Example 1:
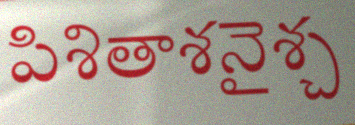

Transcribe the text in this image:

పిశితాశనైశ్చ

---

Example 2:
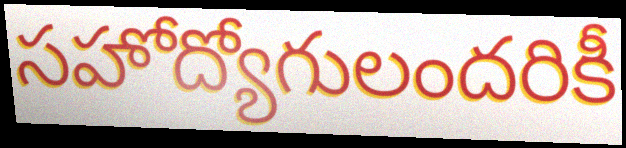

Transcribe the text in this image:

సహోద్యోగులందరికీ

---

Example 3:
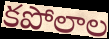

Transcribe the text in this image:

కపోలాల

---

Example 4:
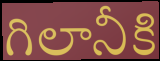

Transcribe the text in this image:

గిలానీకి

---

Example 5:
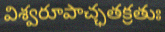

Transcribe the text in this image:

విశ్వరూపాచ్ఛతక్రతుః